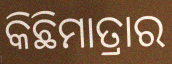
କିଛିମାତ୍ରାର